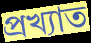
প্ৰখ্যাত